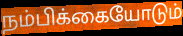
நம்பிக்கையோடும்